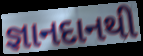
જ્ઞાનદાનથી